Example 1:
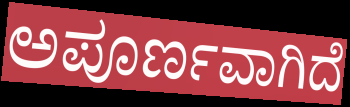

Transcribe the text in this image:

ಅಪೂರ್ಣವಾಗಿದೆ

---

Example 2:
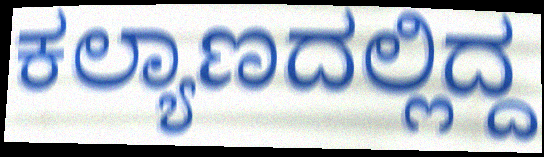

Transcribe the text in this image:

ಕಲ್ಯಾಣದಲ್ಲಿದ್ದ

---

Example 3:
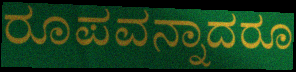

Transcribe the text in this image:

ರೂಪವನ್ನಾದರೂ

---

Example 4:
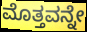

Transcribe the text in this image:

ಮೊತ್ತವನ್ನೇ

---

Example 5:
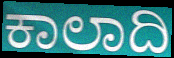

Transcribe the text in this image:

ಕಾಲಾದಿ